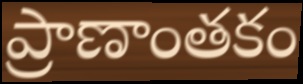
ప్రాణాంతకం